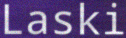
Laski